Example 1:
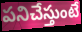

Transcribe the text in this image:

పనిచేస్తుంటే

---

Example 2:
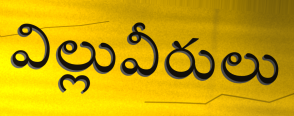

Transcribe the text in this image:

విల్లువీరులు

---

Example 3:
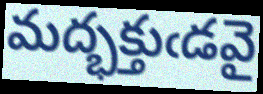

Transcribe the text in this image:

మద్భక్తుఁడవై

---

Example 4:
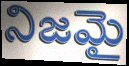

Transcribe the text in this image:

నిజమై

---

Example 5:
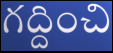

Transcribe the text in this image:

గద్దించి